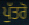
ਪੁੱਤਰੋ